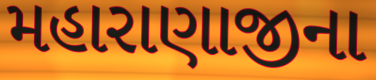
મહારાણાજીના